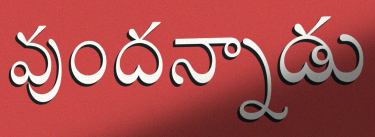
వుందన్నాడు